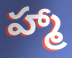
హ్మా